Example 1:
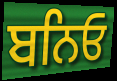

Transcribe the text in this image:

ਬਨਿਓ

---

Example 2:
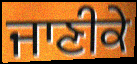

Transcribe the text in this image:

ਜਾਣੀਕੇ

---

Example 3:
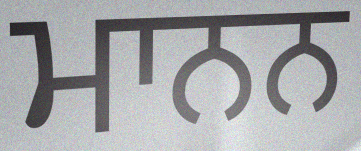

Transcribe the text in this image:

ਮਾਨਨ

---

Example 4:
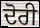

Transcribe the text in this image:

ਦੋਰੀ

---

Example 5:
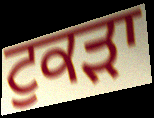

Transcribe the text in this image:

ਟੁਕਡ਼ਾ